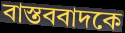
বাস্তববাদকে